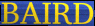
BAIRD